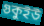
গুকুইউ